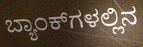
ಬ್ಯಾಂಕ್‌ಗಳಲ್ಲಿನ